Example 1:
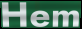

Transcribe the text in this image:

Hem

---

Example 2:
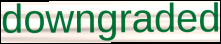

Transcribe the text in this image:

downgraded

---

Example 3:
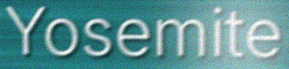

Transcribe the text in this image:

Yosemite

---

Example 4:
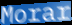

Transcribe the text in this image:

Morar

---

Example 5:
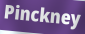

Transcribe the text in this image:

Pinckney